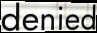
denied